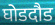
घोडदौड